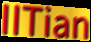
IITian